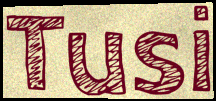
Tusi